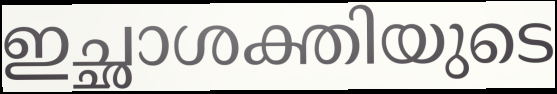
ഇച്ഛാശക്തിയുടെ